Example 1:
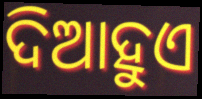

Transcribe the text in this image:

ଦିଆହୁଏ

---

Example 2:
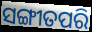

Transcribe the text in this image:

ସଙ୍ଗୀତପରି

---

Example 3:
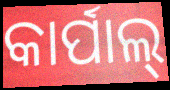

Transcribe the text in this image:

କାର୍ପାଲ୍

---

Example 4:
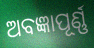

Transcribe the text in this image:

ଅବଜ୍ଞାପୂର୍ଣ୍ଣ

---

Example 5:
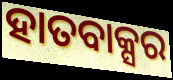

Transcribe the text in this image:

ହାତବାକ୍ସର